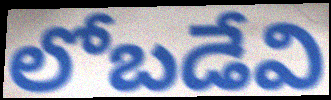
లోబడేవి